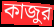
কাজুর